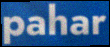
pahar